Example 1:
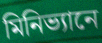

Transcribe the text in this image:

মিনিভ্যানে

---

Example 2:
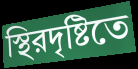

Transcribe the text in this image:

স্থিরদৃষ্টিতে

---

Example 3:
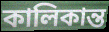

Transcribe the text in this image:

কালিকান্ত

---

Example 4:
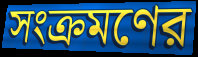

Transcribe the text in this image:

সংক্রমণের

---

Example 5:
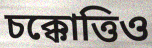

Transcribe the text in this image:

চক্কোত্তিও